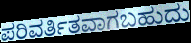
ಪರಿವರ್ತಿತವಾಗಬಹುದು